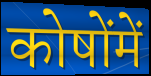
कोषोंमें